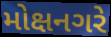
મોક્ષનગરે